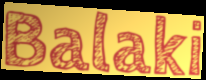
Balaki